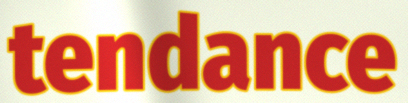
tendance